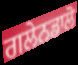
ਗਲੇਨਡਾਲੋ